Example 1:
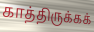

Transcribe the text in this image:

காத்திருக்கக்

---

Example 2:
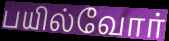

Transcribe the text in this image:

பயில்வோர்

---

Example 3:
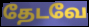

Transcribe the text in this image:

தேடவே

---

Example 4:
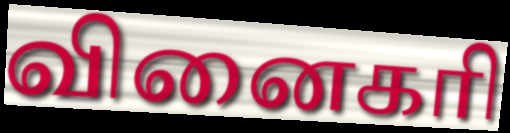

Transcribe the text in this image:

வினைகரி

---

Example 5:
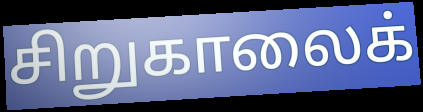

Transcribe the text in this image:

சிறுகாலைக்